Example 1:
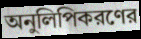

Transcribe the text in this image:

অনুলিপিকরণের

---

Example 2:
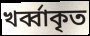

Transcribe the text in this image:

খর্ব্বাকৃত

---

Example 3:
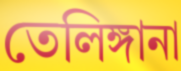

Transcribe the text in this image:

তেলিঙ্গানা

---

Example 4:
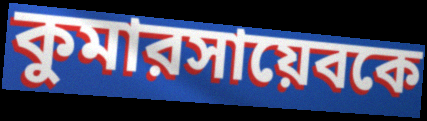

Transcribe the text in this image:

কুমারসায়েবকে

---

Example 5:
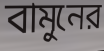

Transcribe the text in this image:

বামুনের